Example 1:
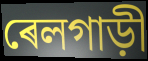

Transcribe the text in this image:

ৰেলগাড়ী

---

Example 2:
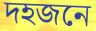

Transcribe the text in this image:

দহজনে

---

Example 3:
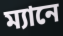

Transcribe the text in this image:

ম্যানে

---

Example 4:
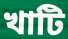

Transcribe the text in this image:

খাটি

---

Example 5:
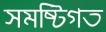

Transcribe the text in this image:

সমষ্টিগত